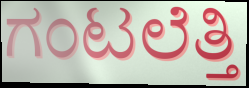
ಗಂಟಲೆತ್ತಿ